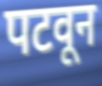
पटवून